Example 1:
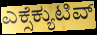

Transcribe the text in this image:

ಎಕ್ಸೆಕ್ಯುಟಿವ್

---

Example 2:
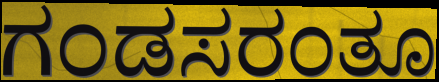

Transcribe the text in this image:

ಗಂಡಸರಂತೂ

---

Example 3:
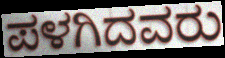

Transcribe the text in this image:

ಪಳಗಿದವರು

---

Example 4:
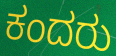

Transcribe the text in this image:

ಕಂದರು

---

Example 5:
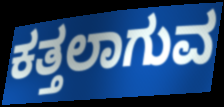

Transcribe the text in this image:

ಕತ್ತಲಾಗುವ